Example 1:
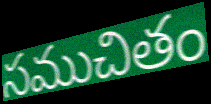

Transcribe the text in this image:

సముచితం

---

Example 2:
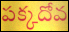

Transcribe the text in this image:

పక్కదోవ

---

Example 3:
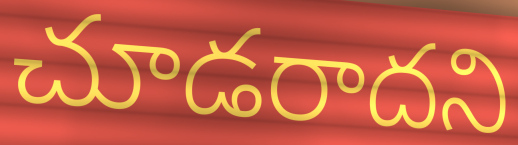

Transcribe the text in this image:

చూడరాదని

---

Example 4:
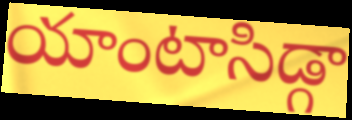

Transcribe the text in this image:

యాంటాసిడ్గా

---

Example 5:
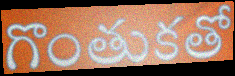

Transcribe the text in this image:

గొంతుకతో